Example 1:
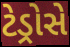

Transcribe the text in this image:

ટેડ્રોસે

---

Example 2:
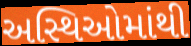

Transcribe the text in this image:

અસ્થિઓમાંથી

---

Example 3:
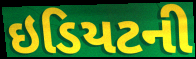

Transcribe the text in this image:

ઇડિયટની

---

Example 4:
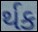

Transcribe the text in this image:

ર્થક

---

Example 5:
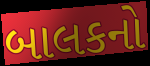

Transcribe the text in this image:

બાલકનો